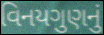
વિનયગુણનું